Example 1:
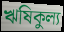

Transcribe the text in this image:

ঋষিকুল্য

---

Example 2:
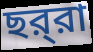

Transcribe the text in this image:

ছর্‌রা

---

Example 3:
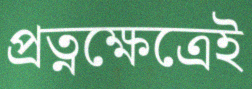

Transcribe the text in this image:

প্রত্নক্ষেত্রেই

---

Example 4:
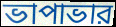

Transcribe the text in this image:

ভাপাভার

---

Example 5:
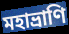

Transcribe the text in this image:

মহাভ্রাণি